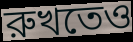
রুখতেও